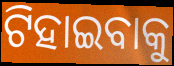
ଟିହାଇବାକୁ